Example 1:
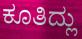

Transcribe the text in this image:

ಕೂತಿದ್ಲು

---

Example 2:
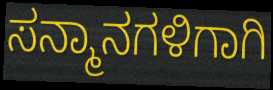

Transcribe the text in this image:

ಸನ್ಮಾನಗಳಿಗಾಗಿ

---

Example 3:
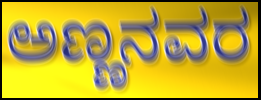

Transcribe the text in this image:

ಅಣ್ಣನವರ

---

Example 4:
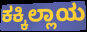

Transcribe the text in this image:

ಕಕ್ಕಿಲ್ಲಾಯ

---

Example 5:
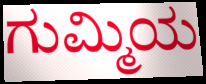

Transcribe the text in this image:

ಗುಮ್ಮಿಯ